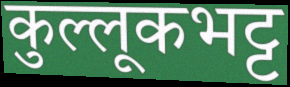
कुल्लूकभट्ट